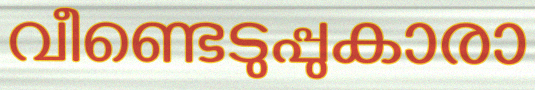
വീണ്ടെടുപ്പുകാരാ